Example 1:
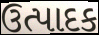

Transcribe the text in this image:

ઉત્પાદક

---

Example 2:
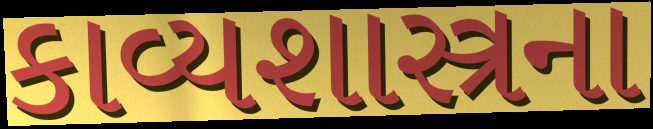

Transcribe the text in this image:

કાવ્યશાસ્ત્રના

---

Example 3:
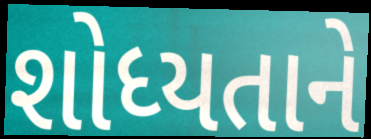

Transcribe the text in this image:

શોધ્યતાને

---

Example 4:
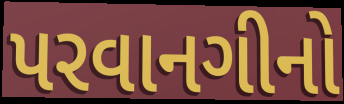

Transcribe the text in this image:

પરવાનગીનો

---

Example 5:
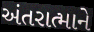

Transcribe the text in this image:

અંતરાત્માને